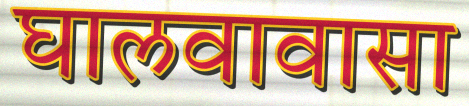
घालवावासा